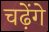
चढ़ेंगे